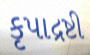
કૃપાદ્રષ્ટી